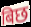
बिछ